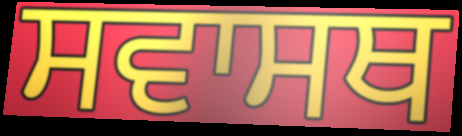
ਸਵਾਸਥ